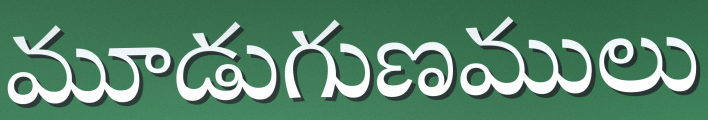
మూడుగుణములు